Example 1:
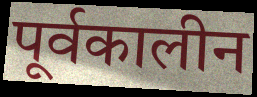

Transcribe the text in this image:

पूर्वकालीन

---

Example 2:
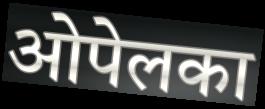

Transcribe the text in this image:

ओपेलका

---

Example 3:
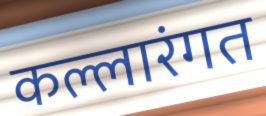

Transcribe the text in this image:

कल्लारंगत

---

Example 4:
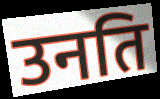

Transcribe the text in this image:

उनति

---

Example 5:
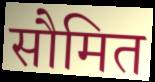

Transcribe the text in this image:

सौमित